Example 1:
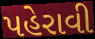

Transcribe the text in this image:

પહેરાવી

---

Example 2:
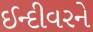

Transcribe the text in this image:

ઈન્દીવરને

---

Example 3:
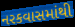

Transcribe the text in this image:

નરકવાસમાંથી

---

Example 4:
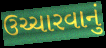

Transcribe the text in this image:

ઉચ્ચારવાનું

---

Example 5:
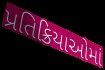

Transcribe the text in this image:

પ્રતિક્રિયાઓમાં